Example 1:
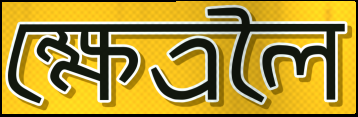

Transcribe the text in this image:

ক্ষেত্ৰলৈ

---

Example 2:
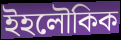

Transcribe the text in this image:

ইহলৌকিক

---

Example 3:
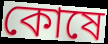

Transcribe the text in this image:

কোষে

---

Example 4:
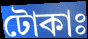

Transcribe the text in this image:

টোকাঃ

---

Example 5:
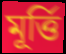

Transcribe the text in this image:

মূৰ্ত্তি